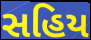
સહિય